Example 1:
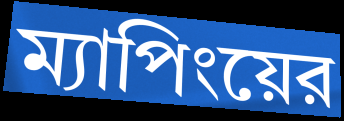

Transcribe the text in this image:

ম্যাপিংয়ের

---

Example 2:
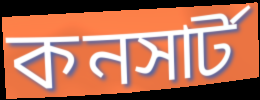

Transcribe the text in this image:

কনসার্ট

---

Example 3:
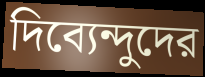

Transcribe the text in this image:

দিব্যেন্দুদের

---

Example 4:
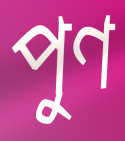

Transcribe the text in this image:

পুণ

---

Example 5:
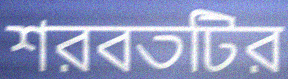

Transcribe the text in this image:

শরবতটির